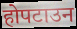
होपटाउन